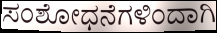
ಸಂಶೋಧನೆಗಳಿಂದಾಗಿ